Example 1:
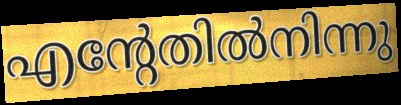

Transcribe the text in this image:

എന്റേതിൽനിന്നു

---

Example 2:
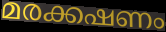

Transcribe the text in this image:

മരക്കഷണം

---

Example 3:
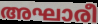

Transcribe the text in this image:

അഘാരീ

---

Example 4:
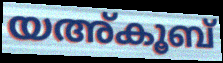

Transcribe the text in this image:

യഅ്കൂബ്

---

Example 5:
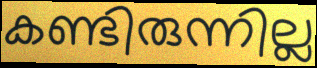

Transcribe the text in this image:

കണ്ടിരുന്നില്ല